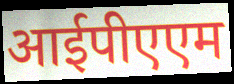
आईपीएएम